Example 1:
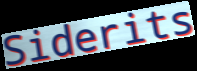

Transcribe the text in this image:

Siderits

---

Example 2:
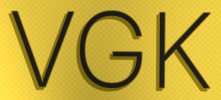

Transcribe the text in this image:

VGK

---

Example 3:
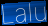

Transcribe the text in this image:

Lalu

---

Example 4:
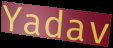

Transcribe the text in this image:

Yadav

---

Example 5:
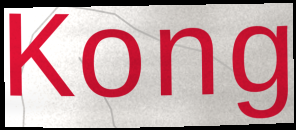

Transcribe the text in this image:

Kong